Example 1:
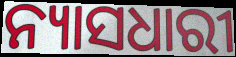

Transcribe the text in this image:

ନ୍ୟାସଧାରୀ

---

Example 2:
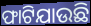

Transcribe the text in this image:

ଫାଟିଯାଉଛି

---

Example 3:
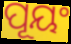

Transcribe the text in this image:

ପୂୟଂ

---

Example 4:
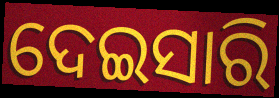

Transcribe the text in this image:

ଦେଇସାରି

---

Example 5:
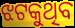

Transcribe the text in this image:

ଝଟକୁଥିବ